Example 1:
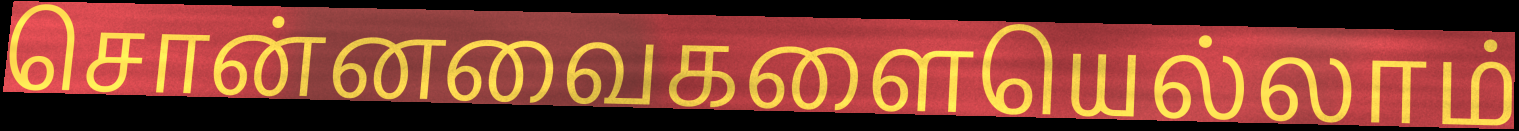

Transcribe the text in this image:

சொன்னவைகளையெல்லாம்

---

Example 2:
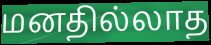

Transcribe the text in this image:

மனதில்லாத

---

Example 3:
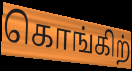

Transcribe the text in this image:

கொங்கிற்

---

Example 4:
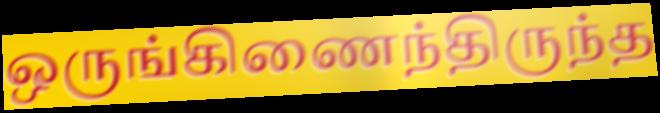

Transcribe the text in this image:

ஒருங்கிணைந்திருந்த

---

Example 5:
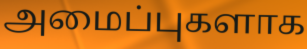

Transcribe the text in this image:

அமைப்புகளாக